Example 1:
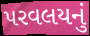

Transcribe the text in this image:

પરવલયનું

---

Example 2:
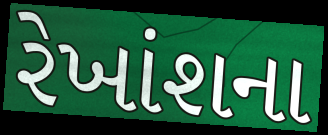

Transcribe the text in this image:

રેખાંશના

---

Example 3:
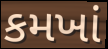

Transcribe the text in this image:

કમખાં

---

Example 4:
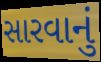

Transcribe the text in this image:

સારવાનું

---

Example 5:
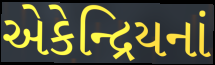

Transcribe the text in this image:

એકેન્દ્રિયનાં